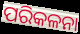
ପରିକଳନା